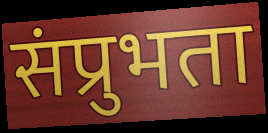
संप्रुभता